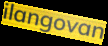
ilangovan